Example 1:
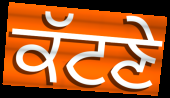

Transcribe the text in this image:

ਕੱਟਣੇ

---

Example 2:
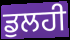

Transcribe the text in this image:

ਡੁਲਹੀ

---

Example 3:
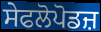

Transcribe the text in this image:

ਸੇਫਲੋਪੋਡਜ਼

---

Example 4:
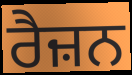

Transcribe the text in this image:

ਰੈਜ਼ਨ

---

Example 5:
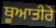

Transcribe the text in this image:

ਥੂਆਤੀਰੇ